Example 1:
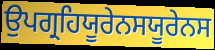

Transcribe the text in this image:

ਉਪਗ੍ਰਹਿਯੂਰੇਨਸਯੂਰੇਨਸ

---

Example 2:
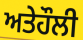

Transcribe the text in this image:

ਅਤੇਹੌਲੀ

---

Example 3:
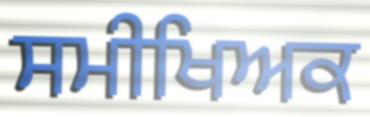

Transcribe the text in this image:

ਸਮੀਖਿਅਕ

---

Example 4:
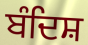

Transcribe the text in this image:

ਬੰਦਿਸ਼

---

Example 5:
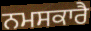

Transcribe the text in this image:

ਨਮਸਕਾਰੈ